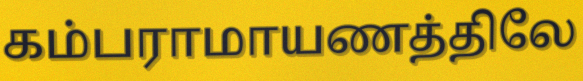
கம்பராமாயணத்திலே